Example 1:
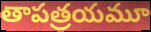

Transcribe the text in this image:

తాపత్రయమూ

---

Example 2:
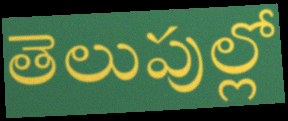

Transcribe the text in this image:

తెలుపుల్లో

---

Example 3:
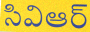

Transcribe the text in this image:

సివిఆర్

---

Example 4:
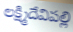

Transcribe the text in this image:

లక్ష్మిదేవిపల్లి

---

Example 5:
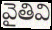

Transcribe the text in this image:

వైతివి